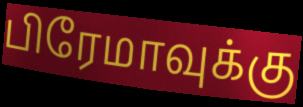
பிரேமாவுக்கு